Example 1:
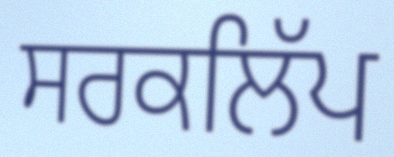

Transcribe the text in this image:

ਸਰਕਲਿੱਪ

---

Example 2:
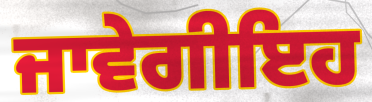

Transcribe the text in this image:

ਜਾਵੇਗੀਇਹ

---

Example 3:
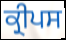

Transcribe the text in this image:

ਕ੍ਰੀਪਸ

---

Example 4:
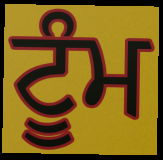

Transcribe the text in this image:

ਟੂੰਮ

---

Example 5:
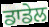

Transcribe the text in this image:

ਡਾਡੇਲ